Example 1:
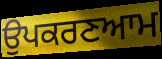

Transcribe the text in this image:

ਉਪਕਰਣਆਮ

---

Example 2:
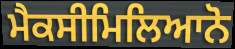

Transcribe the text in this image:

ਮੈਕਸੀਮਿਲਿਆਨੋ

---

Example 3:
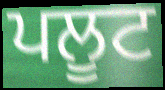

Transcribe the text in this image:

ਪਲੂਟ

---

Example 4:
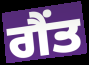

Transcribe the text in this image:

ਗੈਂਤ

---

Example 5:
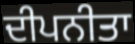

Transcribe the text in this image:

ਦੀਪਨੀਤਾ